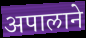
अपालाने